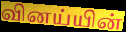
வினய்யின்